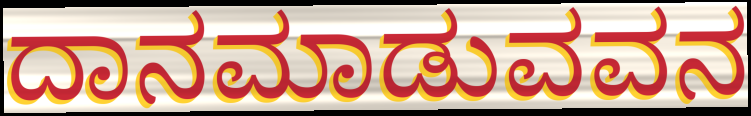
ದಾನಮಾಡುವವನ